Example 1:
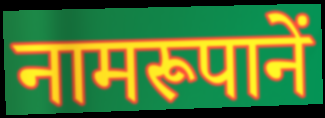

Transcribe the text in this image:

नामरूपानें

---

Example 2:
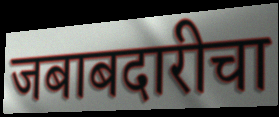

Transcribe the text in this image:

जबाबदारीचा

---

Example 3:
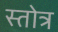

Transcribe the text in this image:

स्तोत्र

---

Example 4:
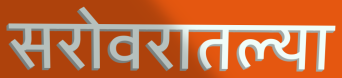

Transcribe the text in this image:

सरोवरातल्या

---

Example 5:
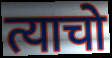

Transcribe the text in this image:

त्याचो